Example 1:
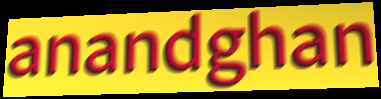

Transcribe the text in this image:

anandghan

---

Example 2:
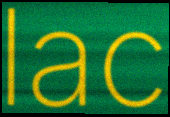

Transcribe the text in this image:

lac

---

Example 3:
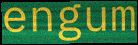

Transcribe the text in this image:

engum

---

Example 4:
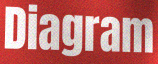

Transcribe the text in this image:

Diagram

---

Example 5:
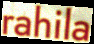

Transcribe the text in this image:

rahila